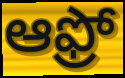
ఆఫ్రో